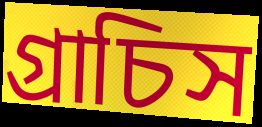
গ্রাচিস